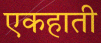
एकहाती